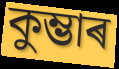
কুম্ভাৰ